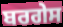
ਬਰਗੇਸ